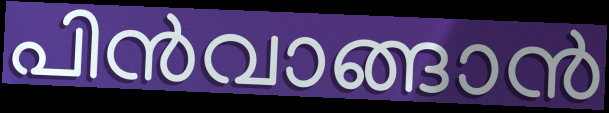
പിൻവാങ്ങാൻ